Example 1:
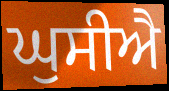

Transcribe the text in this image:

ਘੁਸੀਐ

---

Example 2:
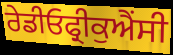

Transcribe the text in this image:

ਰੇਡੀਓਫ੍ਰੀਕੁਐਂਸੀ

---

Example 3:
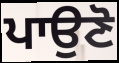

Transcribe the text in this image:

ਪਾਉਣੋ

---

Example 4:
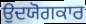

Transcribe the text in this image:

ਉਦਯੋਗਕਾਰ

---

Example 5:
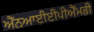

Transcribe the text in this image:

ਐੱਨਆਈਈਪੀਐੱਮਡੀ